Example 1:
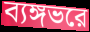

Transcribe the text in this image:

ব্যঙ্গভরে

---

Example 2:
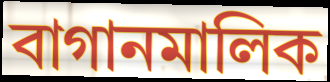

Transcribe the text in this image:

বাগানমালিক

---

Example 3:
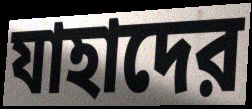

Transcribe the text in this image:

যাহাদের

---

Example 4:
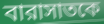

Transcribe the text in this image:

বারাসাতকে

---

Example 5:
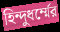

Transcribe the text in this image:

হিন্দুধর্ম্মের